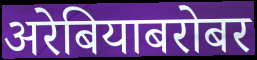
अरेबियाबरोबर